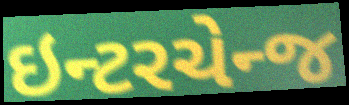
ઇન્ટરચેન્જ